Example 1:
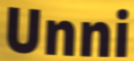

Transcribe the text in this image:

Unni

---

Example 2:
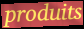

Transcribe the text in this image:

produits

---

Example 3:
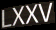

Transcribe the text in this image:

LXXV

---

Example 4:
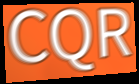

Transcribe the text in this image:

CQR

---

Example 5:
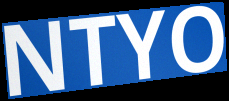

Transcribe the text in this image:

NTYO